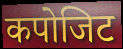
कपोजिट